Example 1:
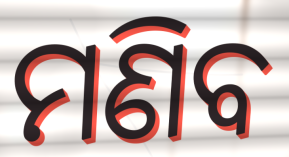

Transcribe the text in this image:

ମଣିବ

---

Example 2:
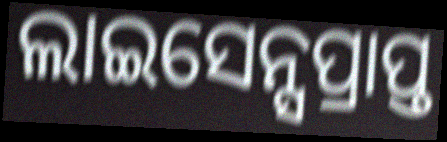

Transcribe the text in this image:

ଲାଇସେନ୍ସପ୍ରାପ୍ତ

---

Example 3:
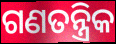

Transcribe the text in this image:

ଗଣତନ୍ତ୍ରିକ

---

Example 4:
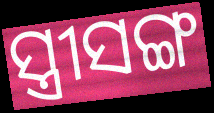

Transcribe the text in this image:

ସ୍ତ୍ରୀସଙ୍ଗ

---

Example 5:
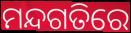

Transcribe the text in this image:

ମନ୍ଦଗତିରେ